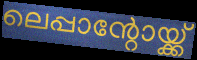
ലെപ്പാന്റോയ്ക്ക്